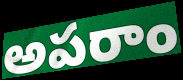
అపరాం